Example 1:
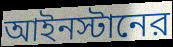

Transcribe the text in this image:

আইনস্টানের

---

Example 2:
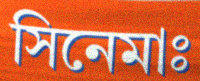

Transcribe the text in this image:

সিনেমাঃ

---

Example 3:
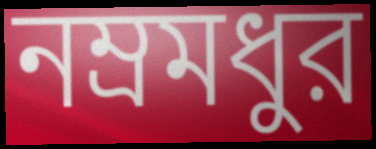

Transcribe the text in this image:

নম্রমধুর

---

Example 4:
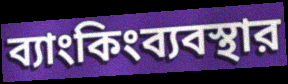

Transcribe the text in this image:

ব্যাংকিংব্যবস্থার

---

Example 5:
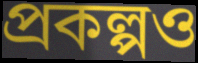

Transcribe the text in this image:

প্রকল্পও